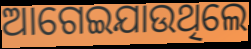
ଆଗେଇଯାଉଥିଲେ